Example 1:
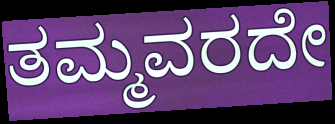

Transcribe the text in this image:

ತಮ್ಮವರದೇ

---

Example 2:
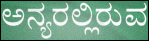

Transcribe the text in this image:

ಅನ್ಯರಲ್ಲಿರುವ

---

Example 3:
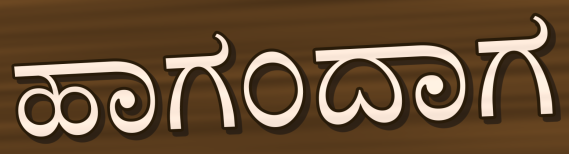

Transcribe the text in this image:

ಹಾಗಂದಾಗ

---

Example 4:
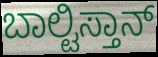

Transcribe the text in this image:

ಬಾಲ್ಟಿಸ್ತಾನ್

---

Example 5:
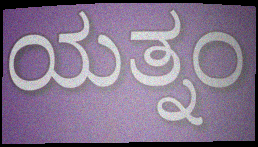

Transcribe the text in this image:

ಯತ್ನಂ